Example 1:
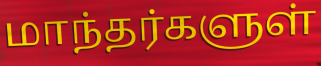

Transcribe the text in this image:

மாந்தர்களுள்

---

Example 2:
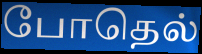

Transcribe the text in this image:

போதெல்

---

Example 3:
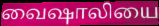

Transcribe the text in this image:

வைஷாலியை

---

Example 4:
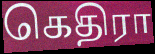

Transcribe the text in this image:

கெதிரா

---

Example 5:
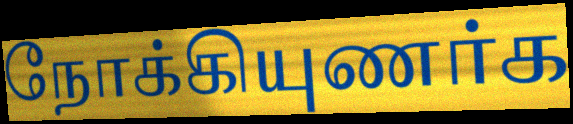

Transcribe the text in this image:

நோக்கியுணர்க